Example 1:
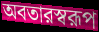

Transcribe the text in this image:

অবতারস্বরূপ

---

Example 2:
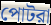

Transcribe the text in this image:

পোটরা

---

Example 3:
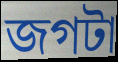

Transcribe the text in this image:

জগটা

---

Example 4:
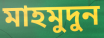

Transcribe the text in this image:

মাহমুদুন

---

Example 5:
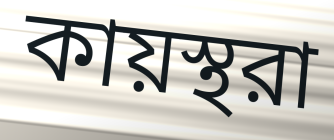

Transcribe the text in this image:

কায়স্থরা